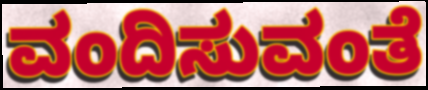
ವಂದಿಸುವಂತೆ